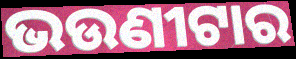
ଭଉଣୀଟାର